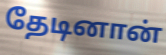
தேடினான்